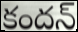
కందన్